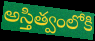
అస్తిత్వంలోకి